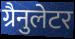
ग्रैनुलेटर